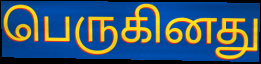
பெருகினது